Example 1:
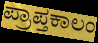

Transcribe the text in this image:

ಪ್ರಾಪ್ತಕಾಲಂ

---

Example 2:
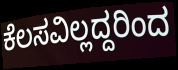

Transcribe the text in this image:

ಕೆಲಸವಿಲ್ಲದ್ದರಿಂದ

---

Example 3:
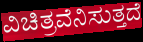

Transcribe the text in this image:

ವಿಚಿತ್ರವೆನಿಸುತ್ತದೆ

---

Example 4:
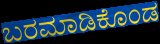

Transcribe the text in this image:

ಬರಮಾಡಿಕೊಂಡ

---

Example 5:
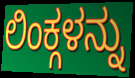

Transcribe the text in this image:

ಲಿಂಕ್ಗಳನ್ನು